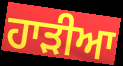
ਹਾੜੀਆ